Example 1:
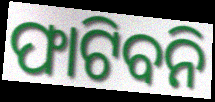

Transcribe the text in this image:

ଫାଟିବନି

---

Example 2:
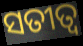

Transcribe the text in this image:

ସତୀତ୍ବ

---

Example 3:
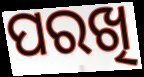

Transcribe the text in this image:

ପରଖି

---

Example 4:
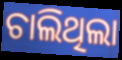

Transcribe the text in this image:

ଚାଲିଥିଲା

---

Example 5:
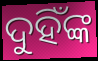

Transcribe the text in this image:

ଦୁହିଁଙ୍କ